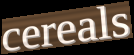
cereals